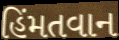
હિંમતવાન